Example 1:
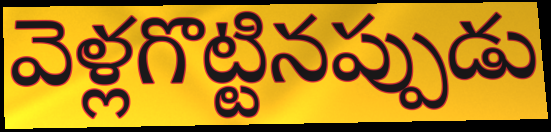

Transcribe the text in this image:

వెళ్లగొట్టినప్పుడు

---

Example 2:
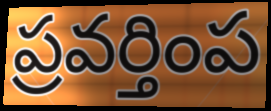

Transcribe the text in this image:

ప్రవర్తింప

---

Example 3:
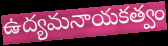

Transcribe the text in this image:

ఉద్యమనాయకత్వం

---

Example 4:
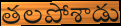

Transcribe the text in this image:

తలపోశాడు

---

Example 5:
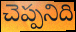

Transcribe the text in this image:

చెప్పనిది